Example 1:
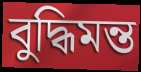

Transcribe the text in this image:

বুদ্ধিমন্ত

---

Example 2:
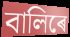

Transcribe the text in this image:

বালিৰে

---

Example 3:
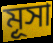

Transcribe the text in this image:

মূসা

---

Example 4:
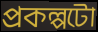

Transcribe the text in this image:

প্ৰকল্পটো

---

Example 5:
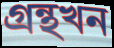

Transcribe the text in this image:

গ্ৰন্থখন